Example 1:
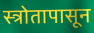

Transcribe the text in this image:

स्त्रोतापासून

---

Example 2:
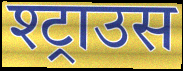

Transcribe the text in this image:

श्ट्राउस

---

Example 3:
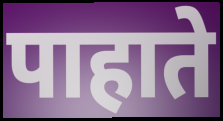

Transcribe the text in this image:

पाहाते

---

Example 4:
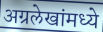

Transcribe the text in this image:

अग्रलेखांमध्ये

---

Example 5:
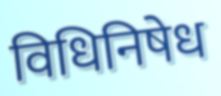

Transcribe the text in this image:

विधिनिषेध